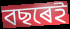
বছৰেই